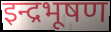
इन्द्रभूषण